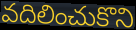
వదిలించుకొని